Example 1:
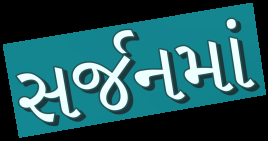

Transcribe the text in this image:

સર્જનમાં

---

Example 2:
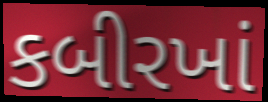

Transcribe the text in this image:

કબીરખાં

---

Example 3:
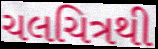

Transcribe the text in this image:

ચલચિત્રથી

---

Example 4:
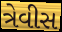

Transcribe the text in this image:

ત્રેવીસ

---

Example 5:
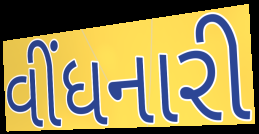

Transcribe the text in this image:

વીંધનારી